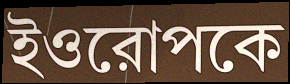
ইওরোপকে